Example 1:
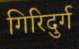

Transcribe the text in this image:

गिरिदुर्ग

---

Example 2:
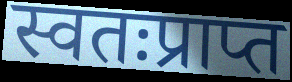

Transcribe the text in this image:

स्वतःप्राप्त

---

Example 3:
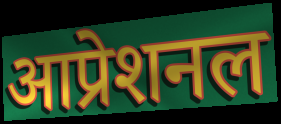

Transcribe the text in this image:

आप्रेशनल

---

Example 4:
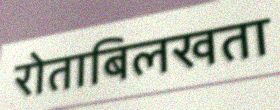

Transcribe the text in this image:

रोताबिलखता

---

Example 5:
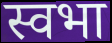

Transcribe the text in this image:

स्वभा